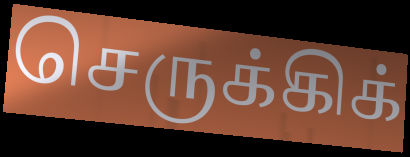
செருக்கிக்